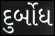
દુર્બોધ